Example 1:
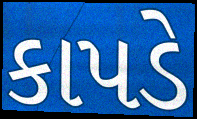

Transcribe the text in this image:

કાપડે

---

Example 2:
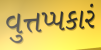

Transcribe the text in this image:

વુત્તપ્પકારં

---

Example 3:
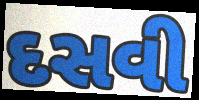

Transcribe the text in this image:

દસવી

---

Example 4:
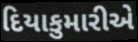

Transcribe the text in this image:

દિયાકુમારીએ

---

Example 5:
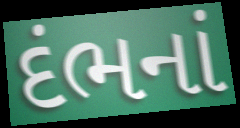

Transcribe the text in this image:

દંભનાં